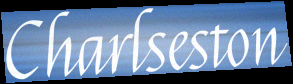
Charlseston